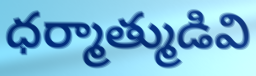
ధర్మాత్ముడివి